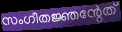
സംഗീതജ്ഞന്റേത്